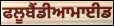
ਫਲੂਬੈਂਡੀਆਮਾਈਡ